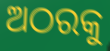
ଅଠରକୁ